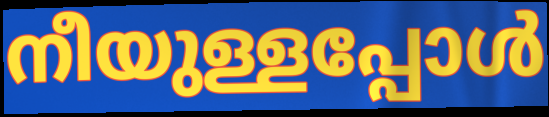
നീയുള്ളപ്പോൾ